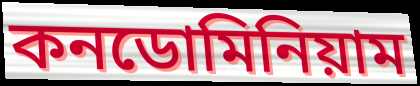
কনডোমিনিয়াম